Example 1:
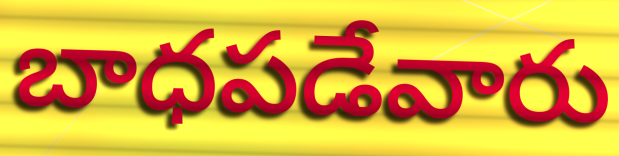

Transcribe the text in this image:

బాధపడేవారు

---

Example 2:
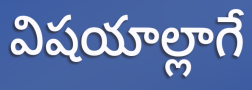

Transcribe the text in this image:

విషయాల్లాగే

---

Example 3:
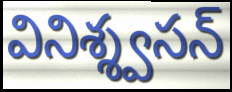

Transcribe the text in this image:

వినిశ్శ్వసన్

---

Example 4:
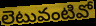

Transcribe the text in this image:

లెటువంటివో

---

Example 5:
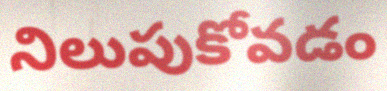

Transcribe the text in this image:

నిలుపుకోవడం